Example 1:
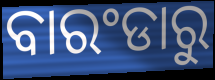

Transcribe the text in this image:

ବାରଂଡାରୁ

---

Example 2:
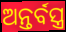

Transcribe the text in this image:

ଅନ୍ତର୍ବସ୍ତ୍ର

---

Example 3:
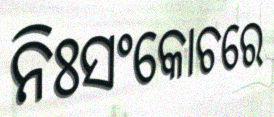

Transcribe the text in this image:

ନିଃସଂକୋଚରେ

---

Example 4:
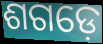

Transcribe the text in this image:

ଶଗଡ଼େ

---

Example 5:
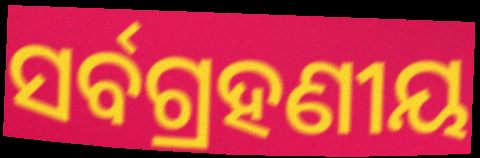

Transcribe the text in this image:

ସର୍ବଗ୍ରହଣୀୟ